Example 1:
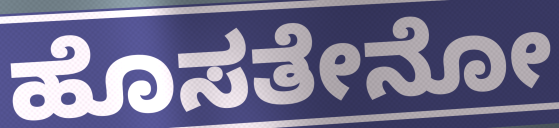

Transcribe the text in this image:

ಹೊಸತೇನೋ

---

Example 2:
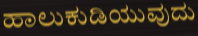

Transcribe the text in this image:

ಹಾಲುಕುಡಿಯುವುದು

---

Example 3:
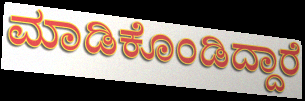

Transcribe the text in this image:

ಮಾಡಿಕೊಂಡಿದ್ದಾರೆ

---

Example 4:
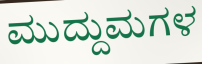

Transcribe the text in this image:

ಮುದ್ದುಮಗಳ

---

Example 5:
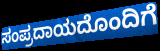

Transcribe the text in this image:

ಸಂಪ್ರದಾಯದೊಂದಿಗೆ